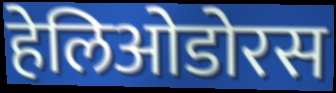
हेलिओडोरस